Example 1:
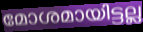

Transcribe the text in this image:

മോശമായിട്ടല്ല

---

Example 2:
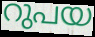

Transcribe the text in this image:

റുപയ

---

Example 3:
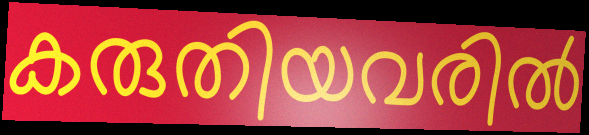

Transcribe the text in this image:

കരുതിയവരിൽ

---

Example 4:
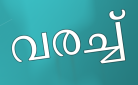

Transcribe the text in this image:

വരച്ച്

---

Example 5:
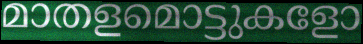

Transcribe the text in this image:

മാതളമൊട്ടുകളോ